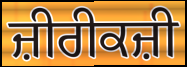
ਜ਼ੀਰੀਕਜ਼ੀ